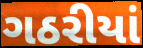
ગઠરીયાં